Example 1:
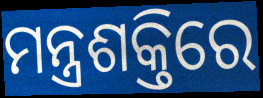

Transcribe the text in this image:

ମନ୍ତ୍ରଶକ୍ତିରେ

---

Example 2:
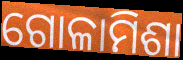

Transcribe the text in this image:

ଗୋଳାମିଶା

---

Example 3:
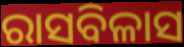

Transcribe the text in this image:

ରାସବିଳାସ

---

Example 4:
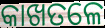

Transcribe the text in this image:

କାଖତଳେ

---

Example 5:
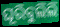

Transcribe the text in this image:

ଘୂରିବୁଲିଲି